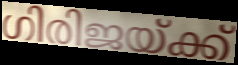
ഗിരിജയ്ക്ക്